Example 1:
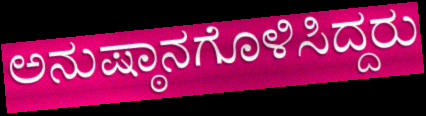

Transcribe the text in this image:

ಅನುಷ್ಠಾನಗೊಳಿಸಿದ್ದರು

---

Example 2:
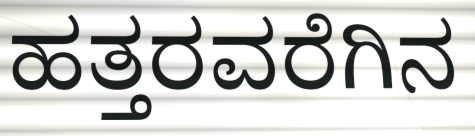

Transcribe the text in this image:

ಹತ್ತರವರೆಗಿನ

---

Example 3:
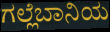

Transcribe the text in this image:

ಗಲ್ಲೆಬಾನಿಯ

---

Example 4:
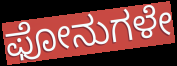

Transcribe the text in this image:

ಫೋನುಗಳೇ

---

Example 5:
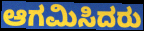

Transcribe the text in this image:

ಆಗಮಿಸಿದರು